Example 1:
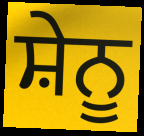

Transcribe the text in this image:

ਸ਼ੇਨੂ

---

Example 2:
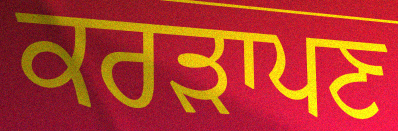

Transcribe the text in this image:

ਕਰੜਾਪਣ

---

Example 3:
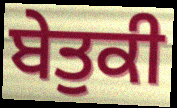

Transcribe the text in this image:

ਬੇਤੁਕੀ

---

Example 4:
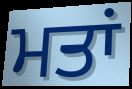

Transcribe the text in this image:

ਮਤਾਂ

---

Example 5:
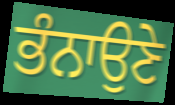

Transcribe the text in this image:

ਭੰਨਾਉਣੇ